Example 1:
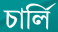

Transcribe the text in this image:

চার্লি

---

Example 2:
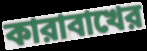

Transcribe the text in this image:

কারাবাখের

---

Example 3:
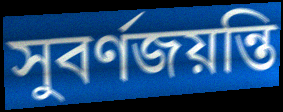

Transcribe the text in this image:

সুবর্ণজয়ন্তি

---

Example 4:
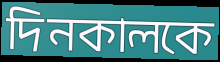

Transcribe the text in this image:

দিনকালকে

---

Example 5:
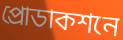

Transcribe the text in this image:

প্রোডাকশনে